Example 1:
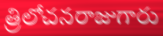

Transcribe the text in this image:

త్రిలోచనరాజుగారు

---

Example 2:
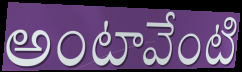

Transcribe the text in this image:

అంటావేంటి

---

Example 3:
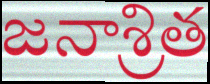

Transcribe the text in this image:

జనాశ్రిత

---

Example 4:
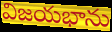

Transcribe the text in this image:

విజయభాను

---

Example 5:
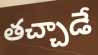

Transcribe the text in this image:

తచ్చాడే